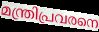
മന്ത്രിപ്രവരനെ